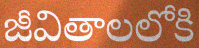
జీవితాలలోకి